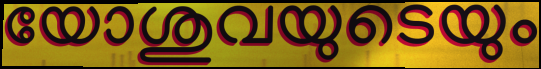
യോശുവയുടെയും